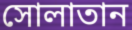
সোলাতান